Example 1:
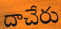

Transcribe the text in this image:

దాచేరు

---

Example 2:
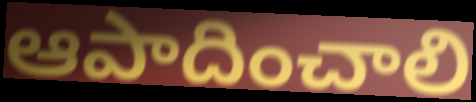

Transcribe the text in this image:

ఆపాదించాలి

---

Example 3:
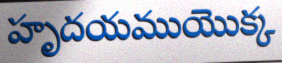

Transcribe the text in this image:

హృదయముయొక్క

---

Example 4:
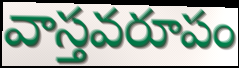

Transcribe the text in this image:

వాస్తవరూపం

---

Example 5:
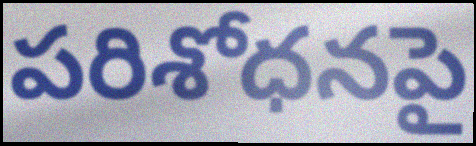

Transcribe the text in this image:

పరిశోధనపై